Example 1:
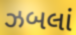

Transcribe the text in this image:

ઝબલાં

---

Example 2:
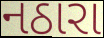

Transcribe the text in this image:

નઠારા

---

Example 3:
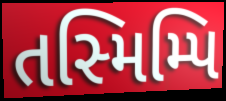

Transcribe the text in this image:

તસ્મિમ્પિ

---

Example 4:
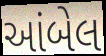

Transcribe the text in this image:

આંબેલ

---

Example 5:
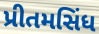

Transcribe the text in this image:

પ્રીતમસિંધ